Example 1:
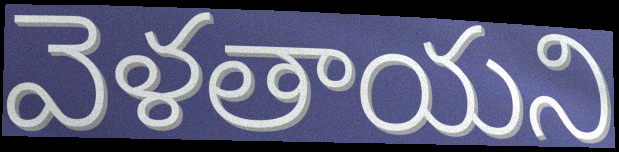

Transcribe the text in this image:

వెళతాయని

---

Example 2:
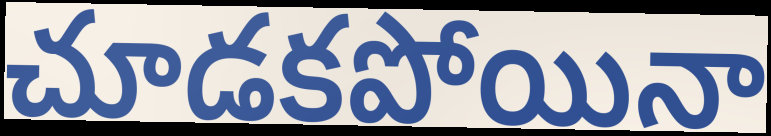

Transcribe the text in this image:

చూడకపోయినా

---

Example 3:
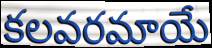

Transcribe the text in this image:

కలవరమాయే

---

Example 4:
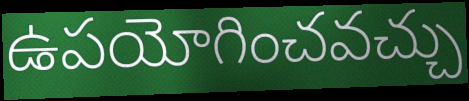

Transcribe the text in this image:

ఉపయోగించవచ్చు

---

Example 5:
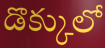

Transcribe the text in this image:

డొక్కులో